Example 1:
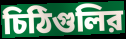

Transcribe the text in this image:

চিঠিগুলির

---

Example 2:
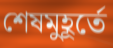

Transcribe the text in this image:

শেষমুহূর্তে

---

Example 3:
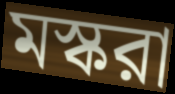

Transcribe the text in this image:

মস্করা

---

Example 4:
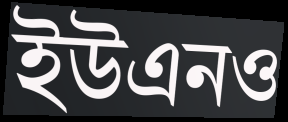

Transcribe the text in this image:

ইউএনও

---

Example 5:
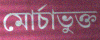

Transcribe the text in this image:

মোর্চাভুক্ত